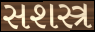
સશસ્ત્ર